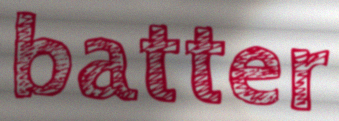
batter